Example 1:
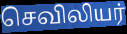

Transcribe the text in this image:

செவிலியர்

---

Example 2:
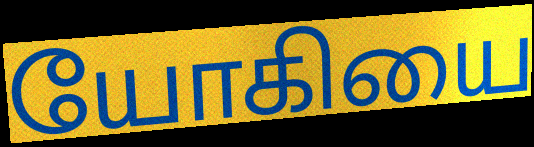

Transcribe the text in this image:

யோகியை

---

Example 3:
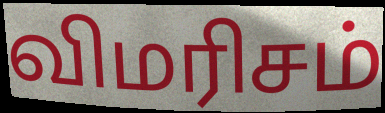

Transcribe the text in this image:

விமரிசம்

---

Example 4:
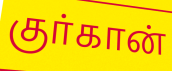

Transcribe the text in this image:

குர்கான்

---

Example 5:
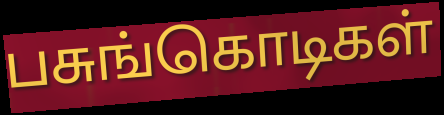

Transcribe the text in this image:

பசுங்கொடிகள்